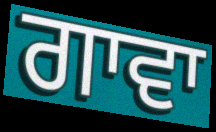
ਗਾਵਾ